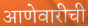
आणेवारीची